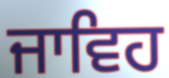
ਜਾਵਿਹ